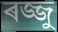
ৰজ্জু